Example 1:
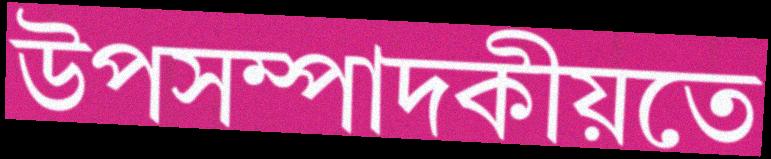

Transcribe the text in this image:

উপসম্পাদকীয়তে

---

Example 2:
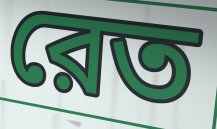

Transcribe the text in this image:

রেত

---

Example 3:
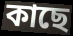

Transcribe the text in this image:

কাছে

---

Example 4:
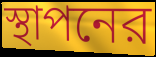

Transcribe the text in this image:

স্থাপনের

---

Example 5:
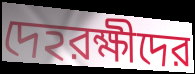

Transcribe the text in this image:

দেহরক্ষীদের